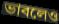
ভাবলেও